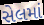
સેલમાં